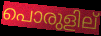
പൊരുളില്